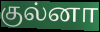
குல்னா